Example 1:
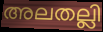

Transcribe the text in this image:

അലതല്ലി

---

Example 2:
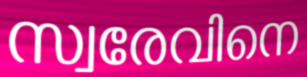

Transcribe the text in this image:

സ്വരേവിനെ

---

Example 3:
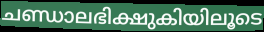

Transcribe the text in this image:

ചണ്ഡാലഭിക്ഷുകിയിലൂടെ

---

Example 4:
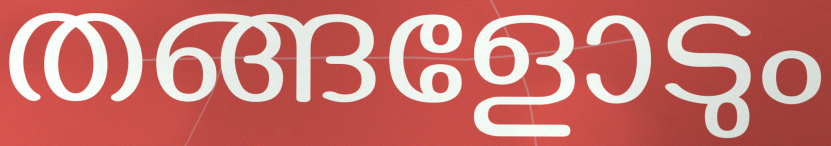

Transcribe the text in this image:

തങ്ങളോടും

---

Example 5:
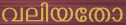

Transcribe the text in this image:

വലിയതോ